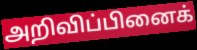
அறிவிப்பினைக்